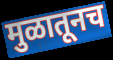
मुळातूनच